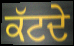
ਕੱਟਦੇ